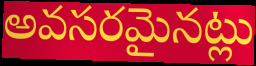
అవసరమైనట్లు